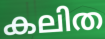
കലിത